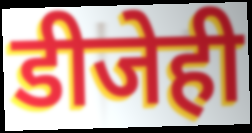
डीजेही